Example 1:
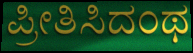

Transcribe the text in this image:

ಪ್ರೀತಿಸಿದಂಥ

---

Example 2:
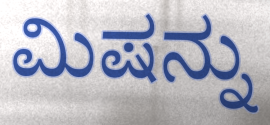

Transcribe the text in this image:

ಮಿಷನ್ನು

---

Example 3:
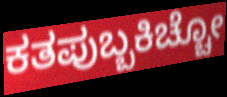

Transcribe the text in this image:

ಕತಪುಬ್ಬಕಿಚ್ಚೋ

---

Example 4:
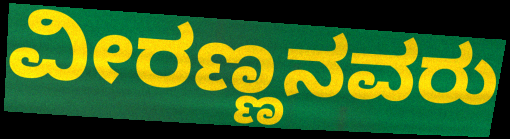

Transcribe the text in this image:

ವೀರಣ್ಣನವರು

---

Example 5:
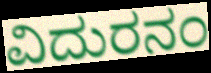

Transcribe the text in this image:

ವಿದುರನಂ